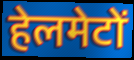
हेलमेटों